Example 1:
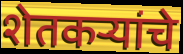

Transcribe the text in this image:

शेतकऱ्यांचे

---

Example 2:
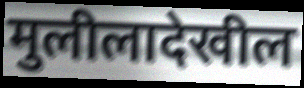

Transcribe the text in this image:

मुलीलादेखील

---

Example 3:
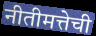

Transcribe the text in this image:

नीतीमत्तेची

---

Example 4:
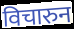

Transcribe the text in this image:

विचारुन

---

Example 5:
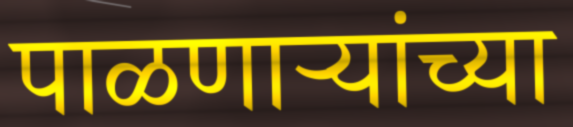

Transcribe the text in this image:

पाळणाऱ्यांच्या